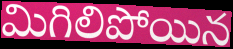
మిగిలిపోయిన